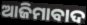
ଆଜିମାବାଦ